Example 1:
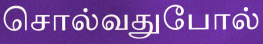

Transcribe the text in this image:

சொல்வதுபோல்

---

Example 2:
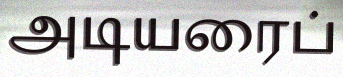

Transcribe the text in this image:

அடியரைப்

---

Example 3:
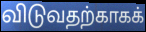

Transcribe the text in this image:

விடுவதற்காகக்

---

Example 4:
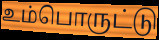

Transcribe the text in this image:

உம்பொருட்டு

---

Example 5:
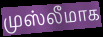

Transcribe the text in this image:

முஸ்லீமாக